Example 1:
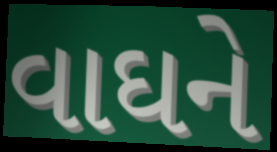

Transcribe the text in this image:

વાઘને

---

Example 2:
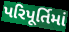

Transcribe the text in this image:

પરિપૂર્તિમાં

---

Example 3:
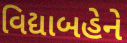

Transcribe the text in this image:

વિદ્યાબહેને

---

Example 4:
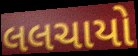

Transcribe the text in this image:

લલચાયો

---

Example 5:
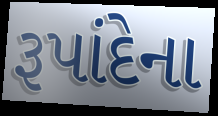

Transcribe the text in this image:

રૂપાંદેના